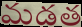
మడత